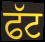
ਫੱਟ